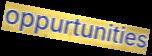
oppurtunities